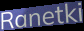
Ranetki